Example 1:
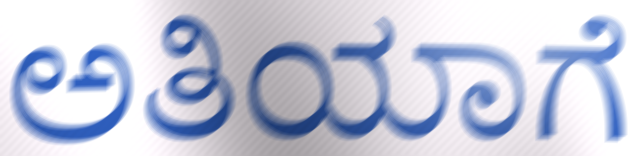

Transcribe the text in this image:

ಅತಿಯಾಗೆ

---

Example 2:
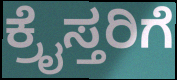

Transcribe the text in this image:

ಕ್ರೈಸ್ತರಿಗೆ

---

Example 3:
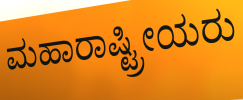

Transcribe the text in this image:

ಮಹಾರಾಷ್ಟ್ರೀಯರು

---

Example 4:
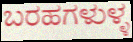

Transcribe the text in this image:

ಬರಹಗಳುಳ್ಳ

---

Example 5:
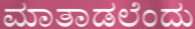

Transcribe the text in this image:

ಮಾತಾಡಲೆಂದು